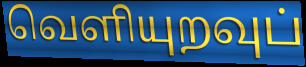
வெளியுறவுப்